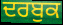
ਦਰਬੁਕ